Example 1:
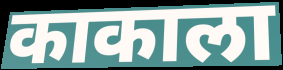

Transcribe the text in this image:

काकाला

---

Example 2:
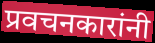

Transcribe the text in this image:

प्रवचनकारांनी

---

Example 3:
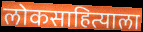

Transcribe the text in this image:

लोकसाहित्याला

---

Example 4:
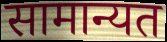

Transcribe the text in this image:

सामान्यत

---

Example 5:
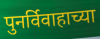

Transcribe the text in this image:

पुनर्विवाहाच्या